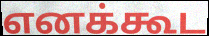
எனக்கூட